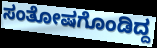
ಸಂತೋಷಗೊಂಡಿದ್ದ